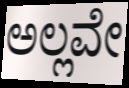
ಅಲ್ಲವೇ